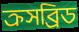
ক্রসব্রিড